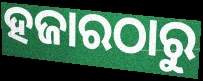
ହଜାରଠାରୁ